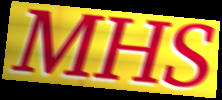
MHS